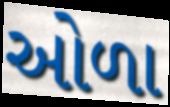
ઓળા